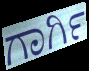
ಗಾರ್ಗಿ